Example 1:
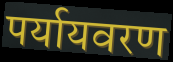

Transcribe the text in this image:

पर्यायवरण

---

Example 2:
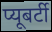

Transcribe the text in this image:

प्यूबर्टी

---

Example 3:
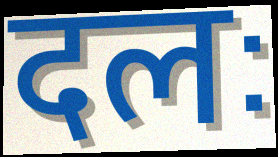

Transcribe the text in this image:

दलः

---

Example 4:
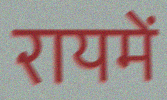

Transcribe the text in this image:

रायमें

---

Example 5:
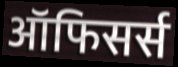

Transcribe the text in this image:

ऑफिसर्स